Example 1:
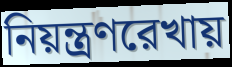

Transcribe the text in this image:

নিয়ন্ত্রণরেখায়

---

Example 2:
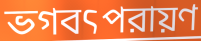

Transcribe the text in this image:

ভগবৎপরায়ণ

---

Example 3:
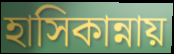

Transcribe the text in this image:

হাসিকান্নায়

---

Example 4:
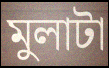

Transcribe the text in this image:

মুলাটা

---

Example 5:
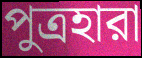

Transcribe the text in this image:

পুত্রহারা